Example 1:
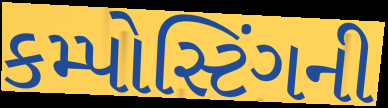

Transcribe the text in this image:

કમ્પોસ્ટિંગની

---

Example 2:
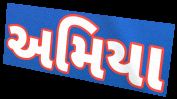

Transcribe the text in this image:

અમિયા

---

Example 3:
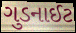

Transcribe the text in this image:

ગુડનાઈટ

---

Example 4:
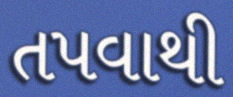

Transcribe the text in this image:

તપવાથી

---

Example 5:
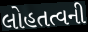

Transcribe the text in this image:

લોહતત્વની